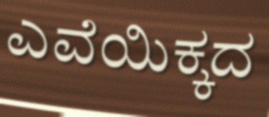
ಎವೆಯಿಕ್ಕದ